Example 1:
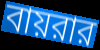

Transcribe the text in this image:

বায়রার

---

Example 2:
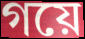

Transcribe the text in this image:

গয়ে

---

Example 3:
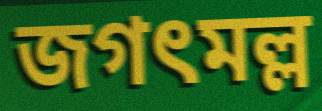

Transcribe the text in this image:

জগৎমল্ল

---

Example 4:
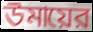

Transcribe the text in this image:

উমায়ের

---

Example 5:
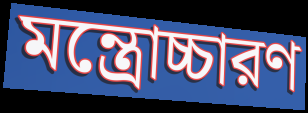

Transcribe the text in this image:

মন্ত্রোচ্চারণ